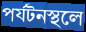
পর্যটনস্থলে